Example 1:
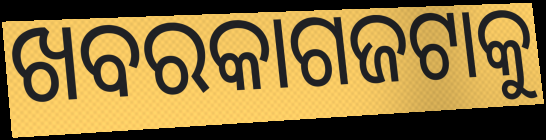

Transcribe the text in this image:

ଖବରକାଗଜଟାକୁ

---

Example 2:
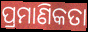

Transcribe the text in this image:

ପ୍ରମାଣିକତା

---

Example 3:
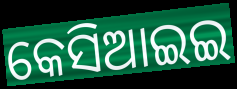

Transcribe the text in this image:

କେସିଆଇଇ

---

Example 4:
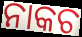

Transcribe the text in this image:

ନାକଚ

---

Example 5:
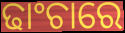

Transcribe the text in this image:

ଢାଂଚାରେ